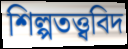
শিল্পতত্ত্ববিদ